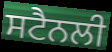
ਸਟੈਨਲੀ